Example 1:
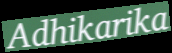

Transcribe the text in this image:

Adhikarika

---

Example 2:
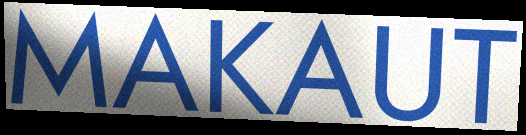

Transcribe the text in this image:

MAKAUT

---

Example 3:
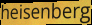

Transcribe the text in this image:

heisenberg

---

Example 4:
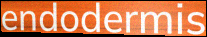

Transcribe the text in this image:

endodermis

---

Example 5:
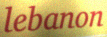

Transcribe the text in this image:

lebanon